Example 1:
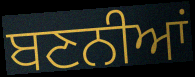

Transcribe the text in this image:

ਬਣਨੀਆਂ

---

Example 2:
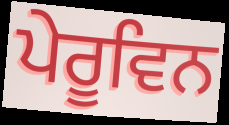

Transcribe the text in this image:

ਪੇਰੂਵਿਨ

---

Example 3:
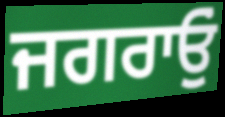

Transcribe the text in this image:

ਜਗਰਾਓੁਂ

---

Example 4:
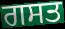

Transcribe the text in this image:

ਗਸਤ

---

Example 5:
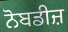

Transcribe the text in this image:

ਨੋਬਡੀਜ਼